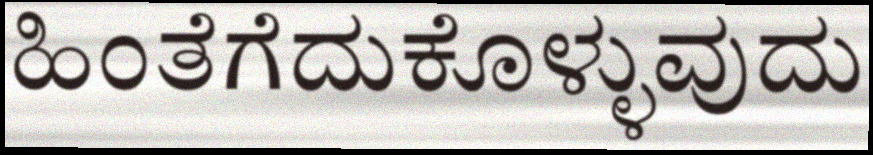
ಹಿಂತೆಗೆದುಕೊಳ್ಳುವುದು